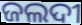
ଜଲଦୀ